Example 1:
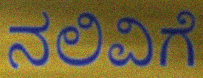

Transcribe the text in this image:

ನಲಿವಿಗೆ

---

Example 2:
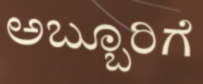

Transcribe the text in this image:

ಅಬ್ಬೂರಿಗೆ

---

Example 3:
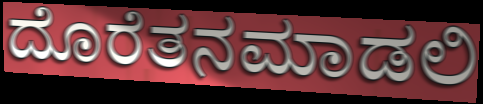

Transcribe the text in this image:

ದೊರೆತನಮಾಡಲಿ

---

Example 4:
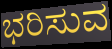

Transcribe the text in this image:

ಭರಿಸುವ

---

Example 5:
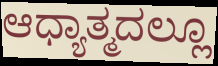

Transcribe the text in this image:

ಆಧ್ಯಾತ್ಮದಲ್ಲೂ